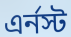
এর্নস্ট